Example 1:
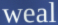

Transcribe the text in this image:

weal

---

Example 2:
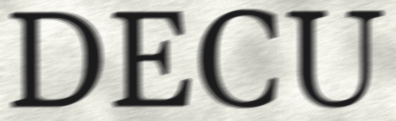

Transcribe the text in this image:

DECU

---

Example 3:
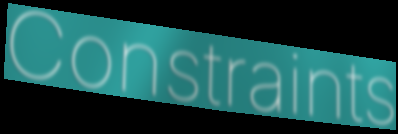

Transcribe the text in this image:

Constraints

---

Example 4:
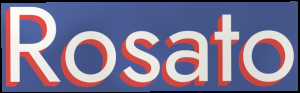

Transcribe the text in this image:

Rosato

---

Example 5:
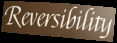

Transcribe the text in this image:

Reversibility